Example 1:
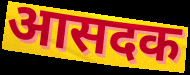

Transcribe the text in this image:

आसदक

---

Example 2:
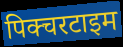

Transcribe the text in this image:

पिक्चरटाइम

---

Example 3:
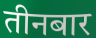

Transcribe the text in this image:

तीनबार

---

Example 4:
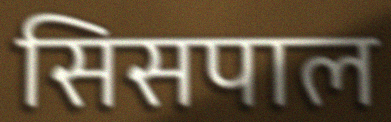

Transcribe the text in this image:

सिसपाल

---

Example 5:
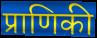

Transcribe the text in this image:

प्राणिकी